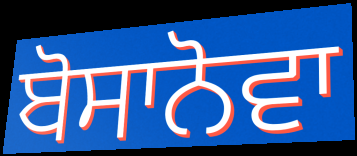
ਬੋਸਾਨੋਵਾ